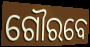
ଗୌରବେ